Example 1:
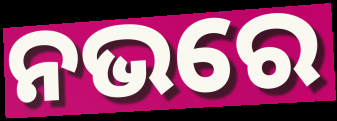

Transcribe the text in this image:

ନଭରେ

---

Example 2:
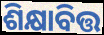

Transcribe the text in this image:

ଶିକ୍ଷାବିତ୍ତ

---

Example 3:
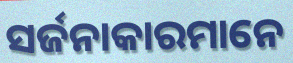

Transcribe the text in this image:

ସର୍ଜନାକାରମାନେ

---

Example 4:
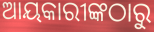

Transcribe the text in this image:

ଆୟକାରୀଙ୍କଠାରୁ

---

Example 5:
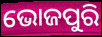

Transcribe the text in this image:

ଭୋଜପୁରି